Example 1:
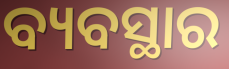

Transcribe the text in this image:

ବ୍ୟବସ୍ଥାର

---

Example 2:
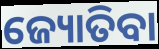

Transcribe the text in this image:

ଜ୍ୟୋତିବା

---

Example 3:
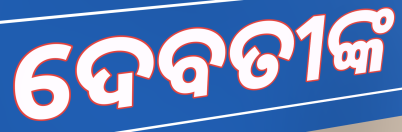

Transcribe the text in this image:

ଦେବତୀଙ୍କ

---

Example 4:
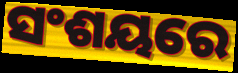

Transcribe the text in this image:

ସଂଶୟରେ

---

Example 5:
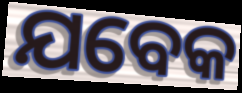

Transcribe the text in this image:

ଯବେକ